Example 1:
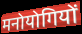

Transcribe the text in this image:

मनोयोगियों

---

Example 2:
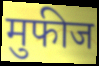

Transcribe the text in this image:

मुफीज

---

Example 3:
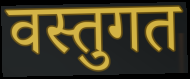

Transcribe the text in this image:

वस्तुगत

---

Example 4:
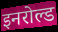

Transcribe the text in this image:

इनरोल्ड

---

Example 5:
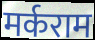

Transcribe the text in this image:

मर्कराम